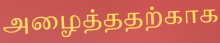
அழைத்ததற்காக